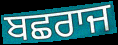
ਬਛਰਾਜ